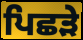
ਪਿਛੜੇ